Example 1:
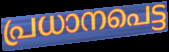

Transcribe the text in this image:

പ്രധാനപെട്ട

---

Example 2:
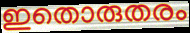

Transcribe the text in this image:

ഇതൊരുതരം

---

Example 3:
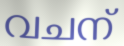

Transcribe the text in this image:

വചന്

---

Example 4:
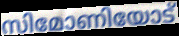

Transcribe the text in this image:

സിമോണിയോട്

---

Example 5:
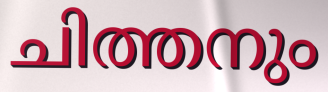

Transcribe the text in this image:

ചിത്തനും